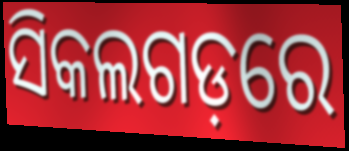
ସିକଲଗଡ଼ରେ